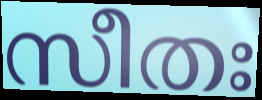
സീതഃ